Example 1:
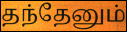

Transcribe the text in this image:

தந்தேனும்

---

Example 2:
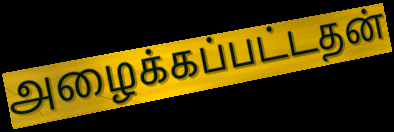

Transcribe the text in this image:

அழைக்கப்பட்டதன்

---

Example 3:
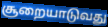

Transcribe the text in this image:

சூறையாடுவது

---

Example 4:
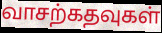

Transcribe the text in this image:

வாசற்கதவுகள்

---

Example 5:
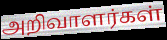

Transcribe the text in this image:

அறிவாளர்கள்